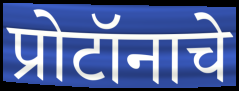
प्रोटॉनाचे